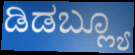
ಡಿಡಬ್ಲ್ಯೂ